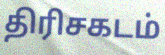
திரிசகடம்